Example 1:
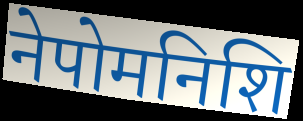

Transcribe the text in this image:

नेपोमनिशि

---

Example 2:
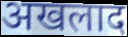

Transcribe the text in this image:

अखलाद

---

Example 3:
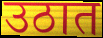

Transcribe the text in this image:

उठात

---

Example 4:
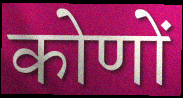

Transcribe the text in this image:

कोणों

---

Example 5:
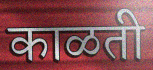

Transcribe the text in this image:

काळती